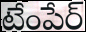
టేంపేర్